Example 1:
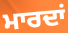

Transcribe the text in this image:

ਮਾਰਦਾਂ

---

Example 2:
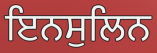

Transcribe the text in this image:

ਇਨਸੁਲਿਨ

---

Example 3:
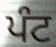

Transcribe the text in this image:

ਪੰਟ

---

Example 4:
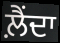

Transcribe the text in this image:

ਲ਼ੈਂਦਾ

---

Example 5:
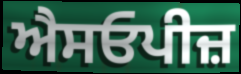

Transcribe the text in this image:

ਐਸਓਪੀਜ਼